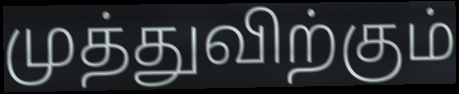
முத்துவிற்கும்